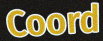
Coord